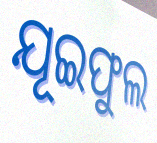
ଯୂଇଫୁଲ